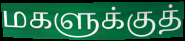
மகளுக்குத்